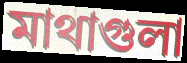
মাথাগুলা